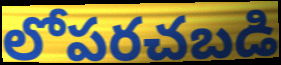
లోపరచబడి